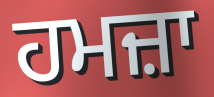
ਹਮਜ਼ਾ